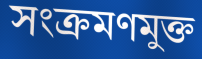
সংক্রমণমুক্ত